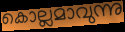
കൊല്ലമാവുന്നു